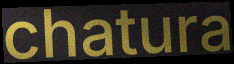
chatura